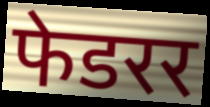
फेडरर